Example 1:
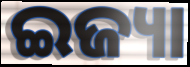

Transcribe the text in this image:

ଇଜ୍ୟା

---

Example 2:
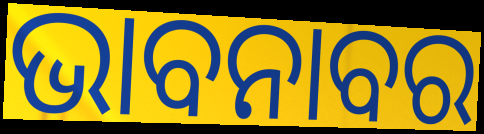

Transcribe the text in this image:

ଭାବନାବର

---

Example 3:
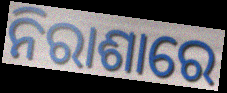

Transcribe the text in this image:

ନିରାଶାରେ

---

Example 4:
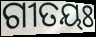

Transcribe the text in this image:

ଗୀତୟଃ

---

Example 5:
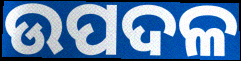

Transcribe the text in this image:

ଉପଦଳ